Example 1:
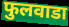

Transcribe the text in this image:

फुलवाडा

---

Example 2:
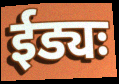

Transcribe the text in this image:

ईड्यः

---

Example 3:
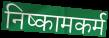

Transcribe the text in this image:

निष्कामकर्म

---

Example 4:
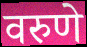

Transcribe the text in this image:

वरुणे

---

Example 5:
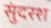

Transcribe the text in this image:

सुंदरश